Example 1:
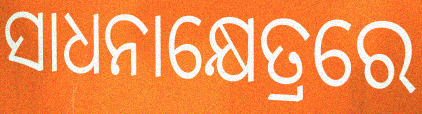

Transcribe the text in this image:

ସାଧନାକ୍ଷେତ୍ରରେ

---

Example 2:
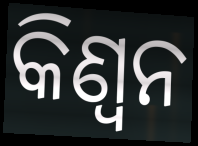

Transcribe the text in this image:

କିଣ୍ୱନ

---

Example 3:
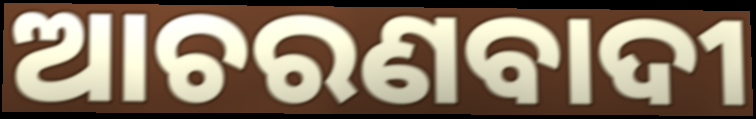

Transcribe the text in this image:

ଆଚରଣବାଦୀ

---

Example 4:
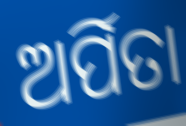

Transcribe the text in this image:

ଅର୍ପିତା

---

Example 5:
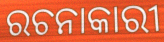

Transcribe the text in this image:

ରଚନାକାରୀ